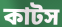
কাটস